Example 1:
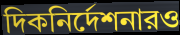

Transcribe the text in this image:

দিকনির্দেশনারও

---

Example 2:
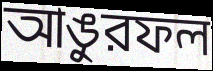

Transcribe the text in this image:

আঙুরফল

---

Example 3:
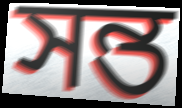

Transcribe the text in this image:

সন্ত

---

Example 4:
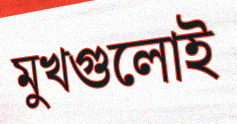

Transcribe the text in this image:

মুখগুলোই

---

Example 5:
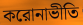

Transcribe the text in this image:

করোনাভীতি